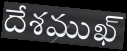
దేశముఖ్